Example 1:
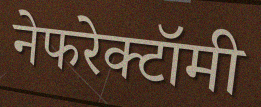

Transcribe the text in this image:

नेफरेक्टॉमी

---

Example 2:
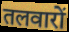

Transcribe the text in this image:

तलवारों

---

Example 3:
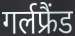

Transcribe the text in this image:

गर्लफ्रैंड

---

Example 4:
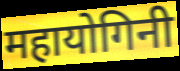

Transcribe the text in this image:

महायोगिनी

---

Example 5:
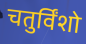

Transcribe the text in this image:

चतुर्विंशो